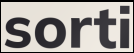
sorti